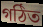
গঠিত